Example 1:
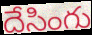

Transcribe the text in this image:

దేసింగు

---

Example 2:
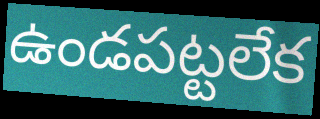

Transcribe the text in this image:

ఉండపట్టలేక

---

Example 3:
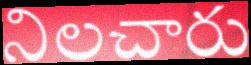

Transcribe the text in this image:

నిలచారు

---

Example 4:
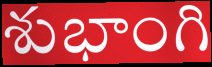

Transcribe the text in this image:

శుభాంగి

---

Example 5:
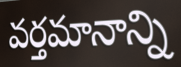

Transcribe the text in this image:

వర్తమానాన్ని